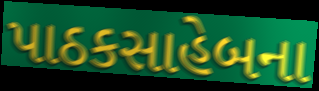
પાઠકસાહેબના